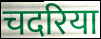
चदरिया